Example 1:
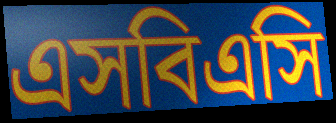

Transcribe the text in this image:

এসবিএসি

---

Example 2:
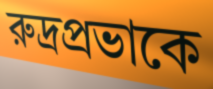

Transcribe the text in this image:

রুদ্রপ্রভাকে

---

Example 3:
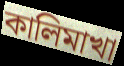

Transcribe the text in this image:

কালিমাখা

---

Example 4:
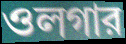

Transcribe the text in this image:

ওলগার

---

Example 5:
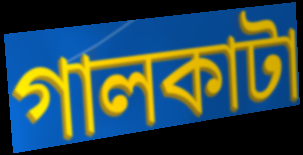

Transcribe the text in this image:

গালকাটা